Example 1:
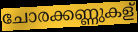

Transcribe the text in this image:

ചോരക്കണ്ണുകള്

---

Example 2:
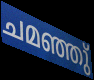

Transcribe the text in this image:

ചമഞ്ഞു്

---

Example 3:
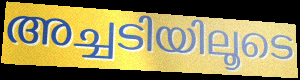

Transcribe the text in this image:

അച്ചടിയിലൂടെ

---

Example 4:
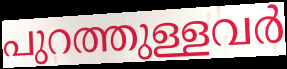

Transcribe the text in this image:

പുറത്തുള്ളവർ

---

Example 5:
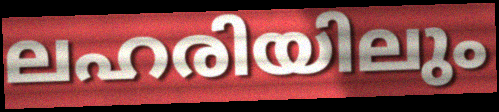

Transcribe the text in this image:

ലഹരിയിലും